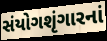
સંયોગશૃંગારનાં